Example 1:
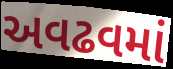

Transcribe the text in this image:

અવઢવમાં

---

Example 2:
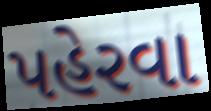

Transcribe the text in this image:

પહેરવા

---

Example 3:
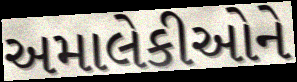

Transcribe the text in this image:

અમાલેકીઓને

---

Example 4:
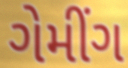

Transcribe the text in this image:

ગેમીંગ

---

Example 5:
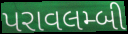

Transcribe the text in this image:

પરાવલમ્બી